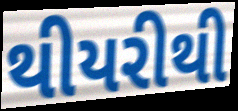
થીયરીથી